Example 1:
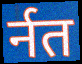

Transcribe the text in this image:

र्नत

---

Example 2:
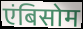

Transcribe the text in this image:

एंबिसोम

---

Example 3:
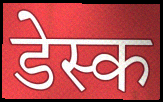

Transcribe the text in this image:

डेस्क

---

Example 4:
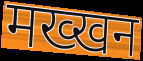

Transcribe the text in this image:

मख्खन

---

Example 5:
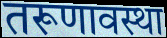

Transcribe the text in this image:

तरूणावस्था